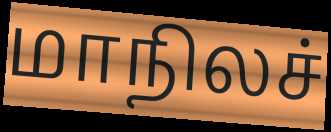
மாநிலச்